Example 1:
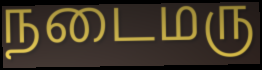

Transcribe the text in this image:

நடைமரு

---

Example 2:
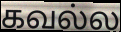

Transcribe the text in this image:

கவல்ல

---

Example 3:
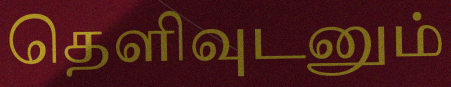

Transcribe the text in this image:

தெளிவுடனும்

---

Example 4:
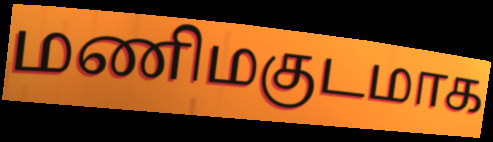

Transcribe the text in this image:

மணிமகுடமாக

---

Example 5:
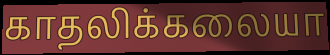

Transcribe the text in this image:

காதலிக்கலையா